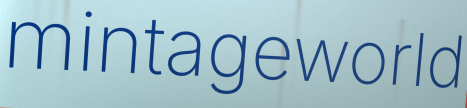
mintageworld